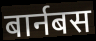
बार्नबस